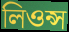
লিওন্স